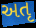
અતૃ